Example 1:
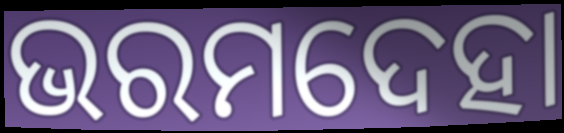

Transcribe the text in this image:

ଭରମଦେହା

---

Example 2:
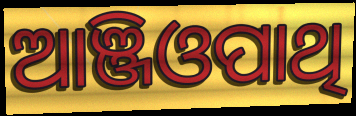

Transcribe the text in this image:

ଆଞ୍ଜିଓପାଥି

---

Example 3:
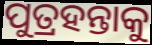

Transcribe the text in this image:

ପୁତ୍ରହନ୍ତାକୁ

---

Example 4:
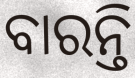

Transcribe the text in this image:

ବାରନ୍ତି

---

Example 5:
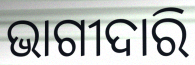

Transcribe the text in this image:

ଭାଗୀଦାରି